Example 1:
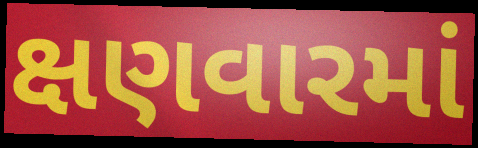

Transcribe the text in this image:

ક્ષણવારમાં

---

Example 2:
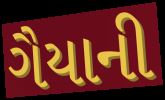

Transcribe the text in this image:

ગૈયાની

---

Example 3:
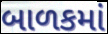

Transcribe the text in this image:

બાળકમાં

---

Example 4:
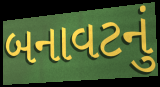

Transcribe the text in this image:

બનાવટનું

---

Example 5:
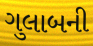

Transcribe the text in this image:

ગુલાબની